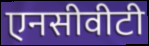
एनसीवीटी